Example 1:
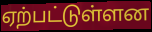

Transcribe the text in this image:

ஏற்பட்டுள்ளன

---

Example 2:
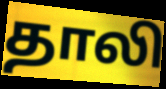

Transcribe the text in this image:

தாலி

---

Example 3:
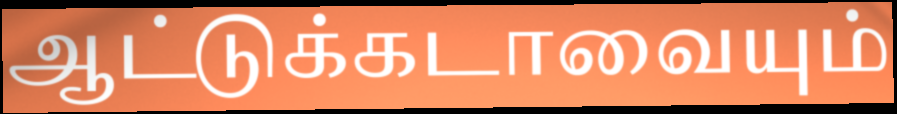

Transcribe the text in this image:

ஆட்டுக்கடாவையும்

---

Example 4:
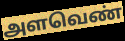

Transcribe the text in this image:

அளவெண்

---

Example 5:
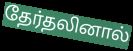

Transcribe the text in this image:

தேர்தலினால்